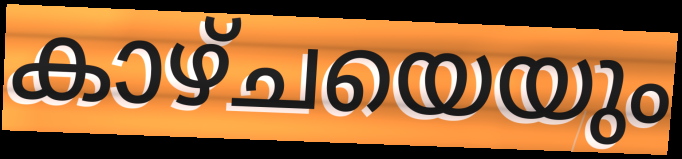
കാഴ്ചയെയും